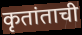
कृतांताची